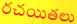
రచయితలు